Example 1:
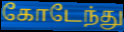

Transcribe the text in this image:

கோடேந்து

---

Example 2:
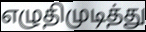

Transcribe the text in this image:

எழுதிமுடித்து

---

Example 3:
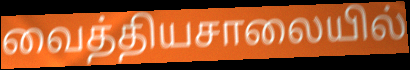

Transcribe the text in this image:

வைத்தியசாலையில்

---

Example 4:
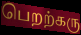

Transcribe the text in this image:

பெறற்கரு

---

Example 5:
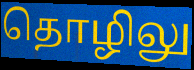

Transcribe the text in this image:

தொழிலு